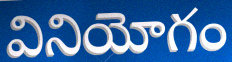
వినియోగం